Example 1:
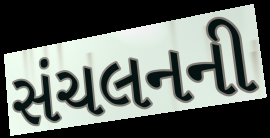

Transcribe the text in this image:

સંચલનની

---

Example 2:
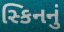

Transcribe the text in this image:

સ્કિનનું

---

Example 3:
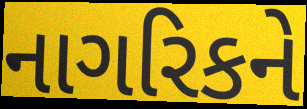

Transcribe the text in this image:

નાગરિકને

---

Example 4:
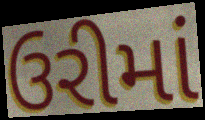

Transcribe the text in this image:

ઉરીમાં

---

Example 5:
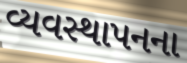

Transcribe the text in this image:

વ્યવસ્થાપનના